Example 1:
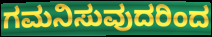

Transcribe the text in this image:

ಗಮನಿಸುವುದರಿಂದ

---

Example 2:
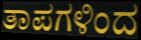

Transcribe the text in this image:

ತಾಪಗಳಿಂದ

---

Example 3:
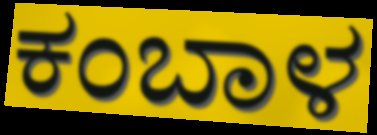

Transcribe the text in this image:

ಕಂಬಾಳ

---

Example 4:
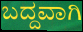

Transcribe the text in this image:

ಬದ್ದವಾಗಿ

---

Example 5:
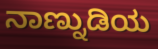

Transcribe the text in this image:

ನಾಣ್ನುಡಿಯ